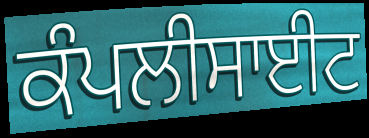
ਕੰਪਲੀਸਾਈਟ